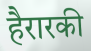
हैरारकी